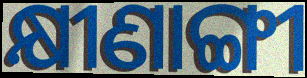
କ୍ଷୀଣାଙ୍ଗୀ